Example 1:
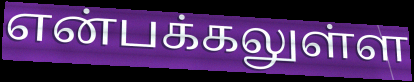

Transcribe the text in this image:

என்பக்கலுள்ள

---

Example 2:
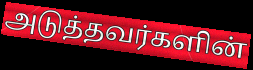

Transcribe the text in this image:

அடுத்தவர்களின்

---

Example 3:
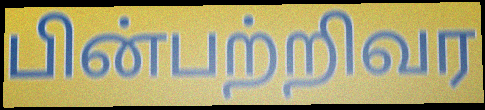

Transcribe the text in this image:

பின்பற்றிவர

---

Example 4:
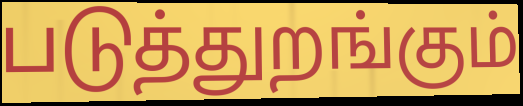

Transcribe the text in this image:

படுத்துறங்கும்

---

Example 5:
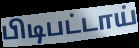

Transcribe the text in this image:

பிடிபட்டாய்